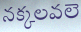
నక్కలవలె